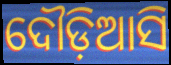
ଦୌଡ଼ିଆସି